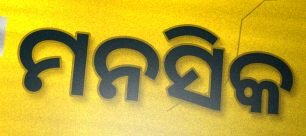
ମନସିକ